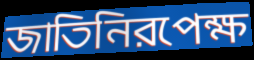
জাতিনিরপেক্ষ